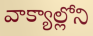
వాక్యాల్లోని